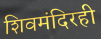
शिवमंदिरही